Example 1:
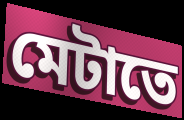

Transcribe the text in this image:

মেটাতে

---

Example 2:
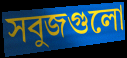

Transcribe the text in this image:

সবুজগুলো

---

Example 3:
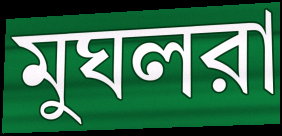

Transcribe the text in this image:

মুঘলরা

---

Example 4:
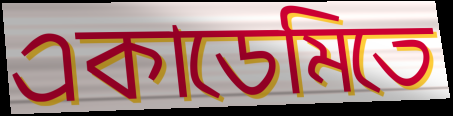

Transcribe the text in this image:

একাডেমিতে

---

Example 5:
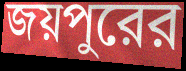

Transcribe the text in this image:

জয়পুরের